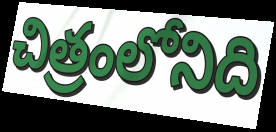
చిత్రంలోనిది